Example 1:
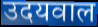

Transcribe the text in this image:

उदयवाल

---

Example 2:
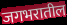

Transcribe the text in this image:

जगभरातील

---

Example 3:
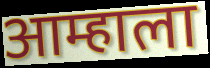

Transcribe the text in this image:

आम्हाला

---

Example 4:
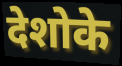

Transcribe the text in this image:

देशोके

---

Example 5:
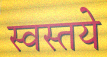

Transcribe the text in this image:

स्वस्तये